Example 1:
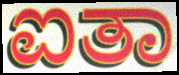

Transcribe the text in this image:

ಐತಾ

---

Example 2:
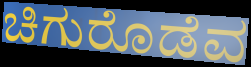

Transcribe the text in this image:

ಚಿಗುರೊಡೆವ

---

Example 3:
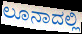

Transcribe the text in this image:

ಲೂನಾದಲ್ಲಿ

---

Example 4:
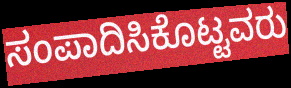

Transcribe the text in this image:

ಸಂಪಾದಿಸಿಕೊಟ್ಟವರು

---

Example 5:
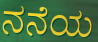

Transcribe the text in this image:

ನನೆಯ